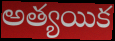
అత్యయిక